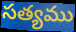
సత్యము